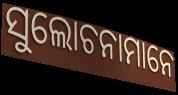
ସୁଲୋଚନାମାନେ